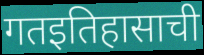
गतइतिहासाची